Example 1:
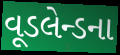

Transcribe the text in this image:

વૂડલેન્ડના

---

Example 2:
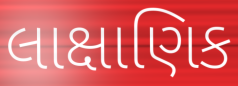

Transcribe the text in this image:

લાક્ષાણિક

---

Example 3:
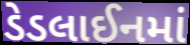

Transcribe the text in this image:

ડેડલાઈનમાં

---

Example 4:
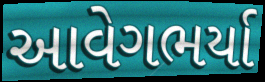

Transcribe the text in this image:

આવેગભર્યા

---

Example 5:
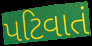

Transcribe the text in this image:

પટિવાતં